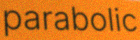
parabolic